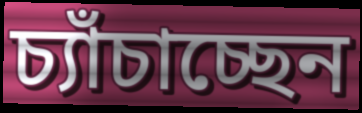
চ্যাঁচাচ্ছেন